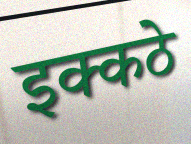
इक्कठे